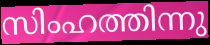
സിംഹത്തിന്നു